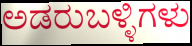
ಅಡರುಬಳ್ಳಿಗಳು